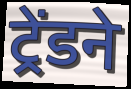
ट्रेंडने